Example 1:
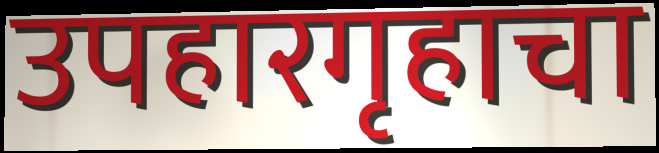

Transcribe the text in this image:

उपहारगृहाचा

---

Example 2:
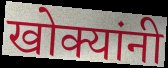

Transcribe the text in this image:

खोक्यांनी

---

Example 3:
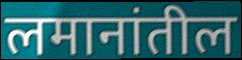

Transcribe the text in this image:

लमानांतील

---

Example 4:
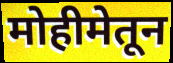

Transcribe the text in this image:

मोहीमेतून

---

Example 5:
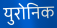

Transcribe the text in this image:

युरोनिक